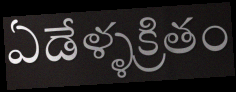
ఏడేళ్ళక్రితం